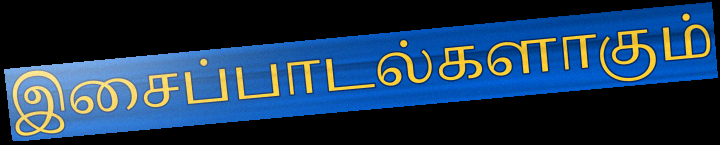
இசைப்பாடல்களாகும்